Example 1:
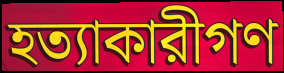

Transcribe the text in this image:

হত্যাকারীগণ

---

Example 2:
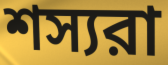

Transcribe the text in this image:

শস্যরা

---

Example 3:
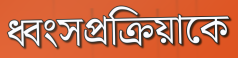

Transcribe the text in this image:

ধ্বংসপ্রক্রিয়াকে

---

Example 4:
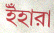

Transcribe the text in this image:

ইঁহারা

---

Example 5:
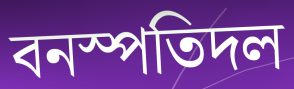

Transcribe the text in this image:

বনস্পতিদল